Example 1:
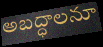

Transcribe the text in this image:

అబద్ధాలనూ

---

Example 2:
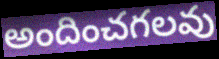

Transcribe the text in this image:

అందించగలవు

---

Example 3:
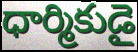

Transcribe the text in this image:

ధార్మికుడై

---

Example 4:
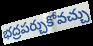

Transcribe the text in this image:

భద్రపర్చుకోవచ్చు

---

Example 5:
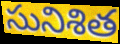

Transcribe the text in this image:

సునిశిత